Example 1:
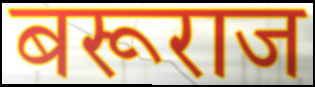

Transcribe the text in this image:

बरूराज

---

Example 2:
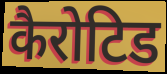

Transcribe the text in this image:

कैरोटिड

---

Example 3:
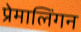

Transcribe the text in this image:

प्रेमालिंगन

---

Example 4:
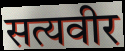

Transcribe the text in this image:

सत्यवीर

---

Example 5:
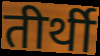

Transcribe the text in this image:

तीर्थी